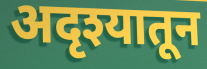
अदृश्यातून